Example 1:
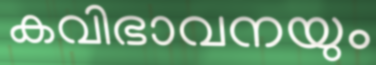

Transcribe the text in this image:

കവിഭാവനയും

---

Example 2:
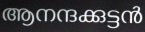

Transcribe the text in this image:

ആനന്ദക്കുട്ടൻ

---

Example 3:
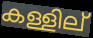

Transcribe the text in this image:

കള്ളില്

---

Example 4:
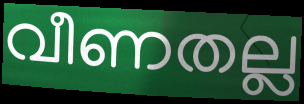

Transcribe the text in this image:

വീണതല്ല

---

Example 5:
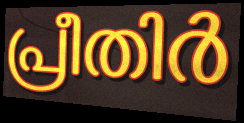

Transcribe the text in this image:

പ്രീതിർ